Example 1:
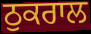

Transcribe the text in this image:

ਠੁਕਰਾਲ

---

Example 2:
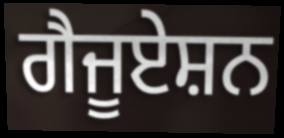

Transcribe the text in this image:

ਗੈਜੂਏਸ਼ਨ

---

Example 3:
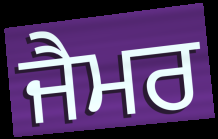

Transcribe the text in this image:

ਜੈਮਰ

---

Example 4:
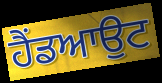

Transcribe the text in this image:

ਹੈਂਡਆਉਟ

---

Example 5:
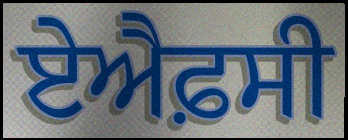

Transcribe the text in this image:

ਏਐਫ਼ਸੀ